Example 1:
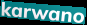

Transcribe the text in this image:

karwano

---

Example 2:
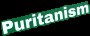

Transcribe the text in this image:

Puritanism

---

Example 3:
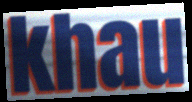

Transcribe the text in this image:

khau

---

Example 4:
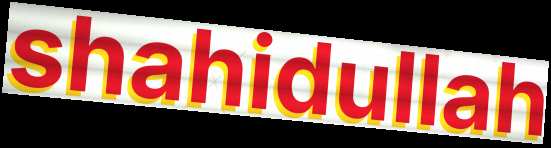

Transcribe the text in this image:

shahidullah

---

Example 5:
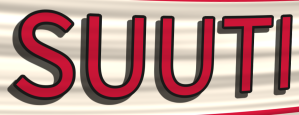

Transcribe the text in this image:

SUUTI